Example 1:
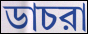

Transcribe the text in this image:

ডাচরা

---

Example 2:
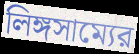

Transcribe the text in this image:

লিঙ্গসাম্যের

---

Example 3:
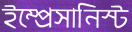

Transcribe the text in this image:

ইম্প্রেসানিস্ট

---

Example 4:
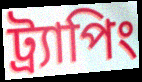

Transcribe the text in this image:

ট্র্যাপিং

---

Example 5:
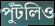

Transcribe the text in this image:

পুঁটলিও